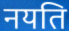
नयति